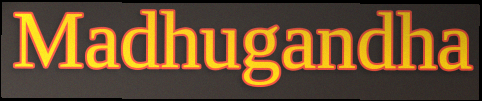
Madhugandha